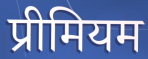
प्रीमियम